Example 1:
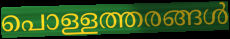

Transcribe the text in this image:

പൊള്ളത്തരങ്ങൾ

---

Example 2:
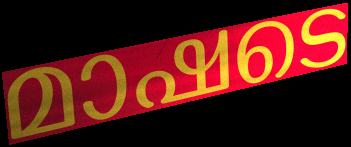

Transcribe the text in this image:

മാഷടെ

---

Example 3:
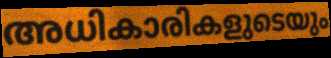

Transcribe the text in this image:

അധികാരികളുടെയും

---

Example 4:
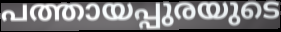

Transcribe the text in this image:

പത്തായപ്പുരയുടെ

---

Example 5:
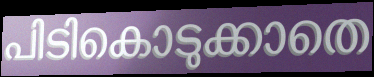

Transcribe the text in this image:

പിടികൊടുക്കാതെ